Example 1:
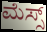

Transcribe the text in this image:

ಮೆಸ್ಸ್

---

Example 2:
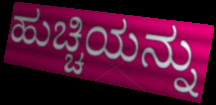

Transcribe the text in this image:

ಹುಚ್ಚಿಯನ್ನು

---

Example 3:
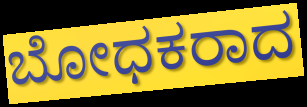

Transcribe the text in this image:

ಬೋಧಕರಾದ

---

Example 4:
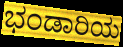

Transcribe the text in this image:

ಭಂಡಾರಿಯ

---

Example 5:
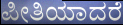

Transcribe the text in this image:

ಪೀತಿಯಾದರೆ